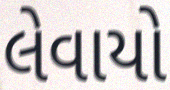
લેવાયો